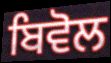
ਬਿਵੋਲ